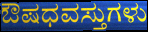
ಔಷಧವಸ್ತುಗಳು